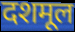
दशमूल